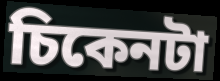
চিকেনটা